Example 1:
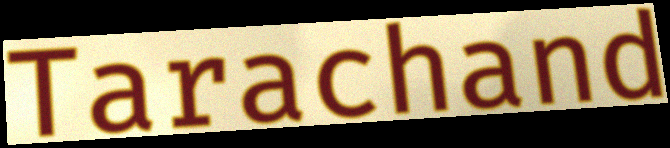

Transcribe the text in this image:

Tarachand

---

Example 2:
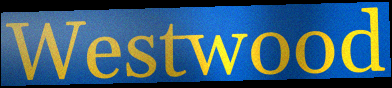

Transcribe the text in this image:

Westwood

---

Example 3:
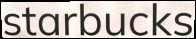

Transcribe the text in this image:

starbucks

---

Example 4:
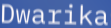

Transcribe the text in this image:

Dwarika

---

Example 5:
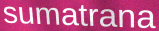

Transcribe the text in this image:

sumatrana